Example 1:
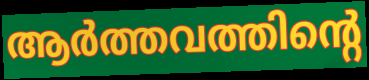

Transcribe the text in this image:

ആർത്തവത്തിന്റെ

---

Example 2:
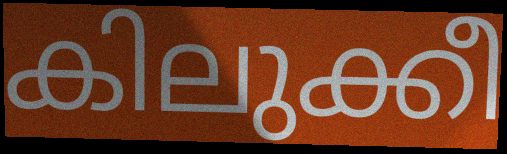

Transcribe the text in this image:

കിലുക്കീ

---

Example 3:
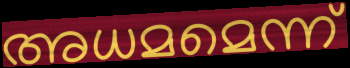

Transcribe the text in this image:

അധമമെന്ന്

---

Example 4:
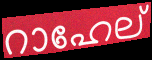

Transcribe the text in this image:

റാഹേല്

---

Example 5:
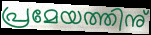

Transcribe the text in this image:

പ്രമേയത്തിനു്